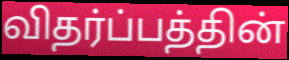
விதர்ப்பத்தின்